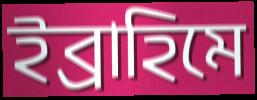
ইব্ৰাহিমে